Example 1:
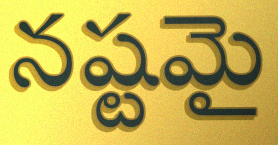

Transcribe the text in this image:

నష్టమై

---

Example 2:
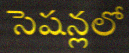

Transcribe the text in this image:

సెషన్లలో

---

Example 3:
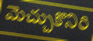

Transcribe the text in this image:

మెచ్చుకొనిరి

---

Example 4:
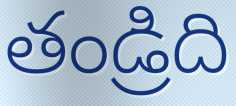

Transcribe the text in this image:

తండ్రిది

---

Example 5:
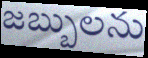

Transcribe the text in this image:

జబ్బులను